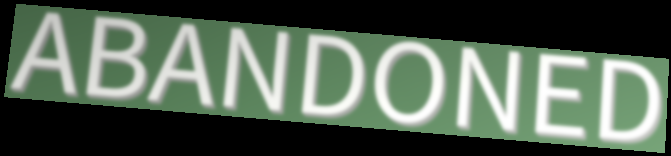
ABANDONED